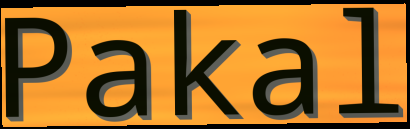
Pakal